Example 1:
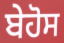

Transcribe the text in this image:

ਬੇਹੋਸ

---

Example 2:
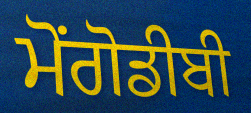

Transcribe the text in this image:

ਮੋਂਗੋਡੀਬੀ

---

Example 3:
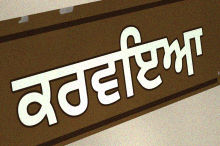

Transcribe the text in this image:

ਕਰਵਇਆ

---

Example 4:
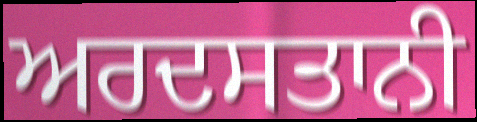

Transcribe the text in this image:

ਅਰਦਸਤਾਨੀ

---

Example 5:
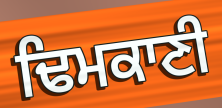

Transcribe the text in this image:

ਢਿਮਕਾਣੀ